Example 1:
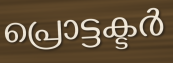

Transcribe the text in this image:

പ്രൊട്ടക്ടർ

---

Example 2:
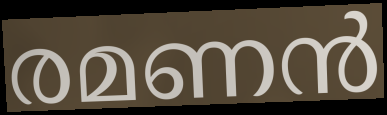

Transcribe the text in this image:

രമണൻ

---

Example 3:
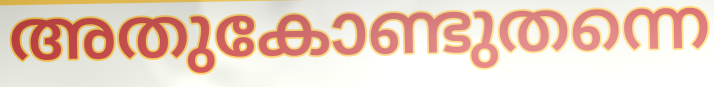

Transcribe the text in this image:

അതുകോണ്ടുതന്നെ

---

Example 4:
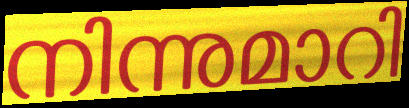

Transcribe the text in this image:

നിന്നുമാറി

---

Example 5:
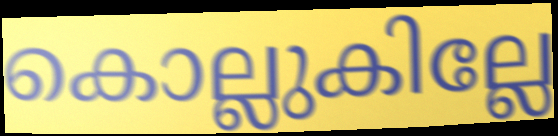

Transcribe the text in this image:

കൊല്ലുകില്ലേ